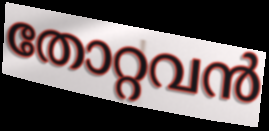
തോറ്റവൻ